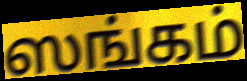
ஸங்கம்